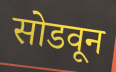
सोडवून